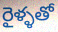
రైళ్ళతో